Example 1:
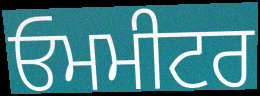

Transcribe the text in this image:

ਓਮਮੀਟਰ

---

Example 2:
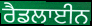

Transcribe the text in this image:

ਰੈਡਲਾਈਨ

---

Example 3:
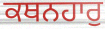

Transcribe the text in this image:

ਕਥਨਹਾਰੁ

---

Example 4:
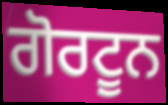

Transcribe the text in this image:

ਗੋਰਟੂਨ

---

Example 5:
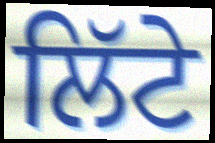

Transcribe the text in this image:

ਲਿੱਟੇ